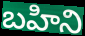
బహిని